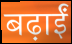
बढ़ाईं